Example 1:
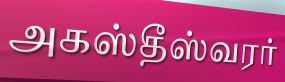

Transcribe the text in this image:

அகஸ்தீஸ்வரர்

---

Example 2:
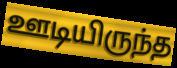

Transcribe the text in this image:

ஊடியிருந்த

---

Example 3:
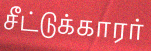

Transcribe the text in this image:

சீட்டுக்காரர்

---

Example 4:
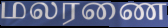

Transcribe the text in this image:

மலரணை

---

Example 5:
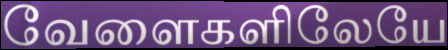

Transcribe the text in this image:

வேளைகளிலேயே